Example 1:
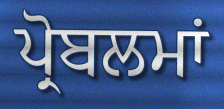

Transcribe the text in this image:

ਪ੍ਰੋਬਲਮਾਂ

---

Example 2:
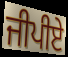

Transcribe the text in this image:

ਜੀਪੀਏ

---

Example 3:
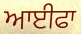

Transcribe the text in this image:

ਆਈਫਾ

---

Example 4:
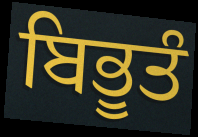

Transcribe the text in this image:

ਬਿਭੂਤੰ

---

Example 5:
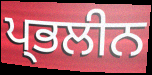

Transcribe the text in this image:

ਪ੍ਭਲੀਨ